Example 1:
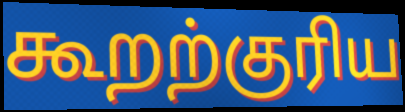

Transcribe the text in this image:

கூறற்குரிய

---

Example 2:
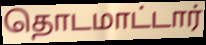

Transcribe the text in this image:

தொடமாட்டார்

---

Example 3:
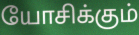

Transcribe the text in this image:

யோசிக்கும்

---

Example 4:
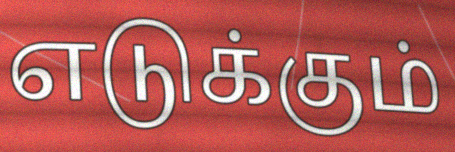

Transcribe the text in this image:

எடுக்கும்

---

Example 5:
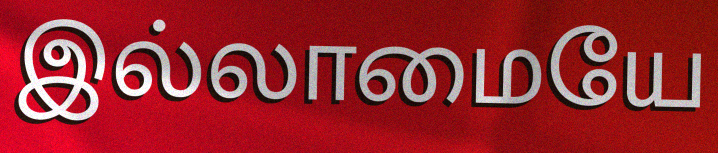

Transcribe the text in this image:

இல்லாமையே